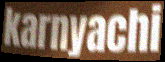
karnyachi